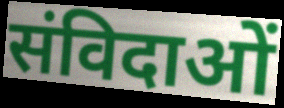
संविदाओं